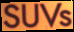
SUVs